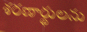
శరణార్థులను